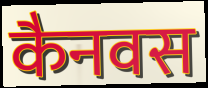
कैनवस